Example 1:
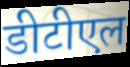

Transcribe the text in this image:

डीटीएल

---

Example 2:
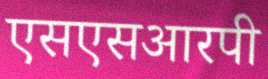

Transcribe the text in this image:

एसएसआरपी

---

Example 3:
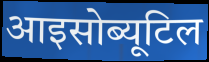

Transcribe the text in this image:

आइसोब्यूटिल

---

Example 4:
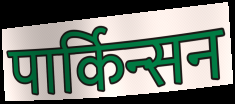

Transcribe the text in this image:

पार्किन्सन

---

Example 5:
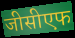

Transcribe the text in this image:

जीसीएफ